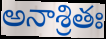
అనాశ్రితః